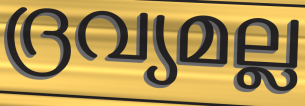
ദ്രവ്യമല്ല